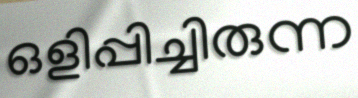
ഒളിപ്പിച്ചിരുന്ന